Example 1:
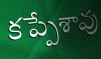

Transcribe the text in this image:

కప్పేశావు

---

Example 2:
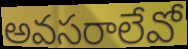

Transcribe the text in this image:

అవసరాలేవో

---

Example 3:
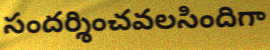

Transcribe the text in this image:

సందర్శించవలసిందిగా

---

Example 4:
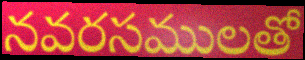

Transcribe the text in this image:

నవరసములతో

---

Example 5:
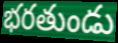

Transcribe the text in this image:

భరతుండు